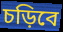
চড়িবে